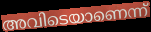
അവിടെയാണെന്ന്